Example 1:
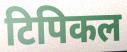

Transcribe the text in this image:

टिपिकल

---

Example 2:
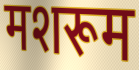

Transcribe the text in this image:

मशरूम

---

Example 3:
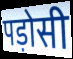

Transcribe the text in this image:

पड़ोसी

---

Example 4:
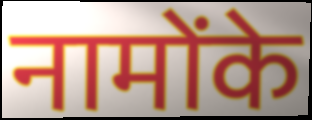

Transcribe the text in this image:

नामोंके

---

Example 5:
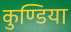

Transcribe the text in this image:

कुण्डिया